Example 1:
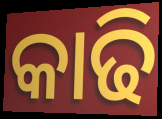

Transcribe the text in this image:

କାଢି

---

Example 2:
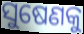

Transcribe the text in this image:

ସୁଷେଣକୁ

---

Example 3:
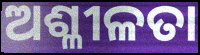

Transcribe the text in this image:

ଅଶ୍ଳୀଳତା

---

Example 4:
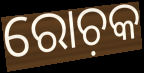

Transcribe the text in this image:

ରୋଚ଼କ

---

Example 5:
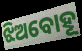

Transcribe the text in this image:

ଝିଅବୋହୂ